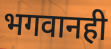
भगवानही